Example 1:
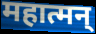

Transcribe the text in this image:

महात्मन्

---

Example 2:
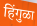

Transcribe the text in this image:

हिंगुळा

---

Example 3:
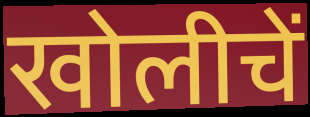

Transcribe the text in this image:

खोलीचें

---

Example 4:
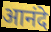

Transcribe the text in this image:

आनंदे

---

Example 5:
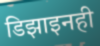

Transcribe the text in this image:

डिझाइनही